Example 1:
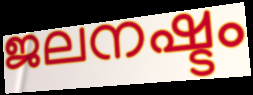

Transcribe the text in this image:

ജലനഷ്ടം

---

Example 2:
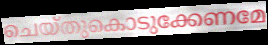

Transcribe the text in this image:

ചെയ്തുകൊടുക്കേണമേ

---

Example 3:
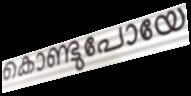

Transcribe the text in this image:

കൊണ്ടുപോയേ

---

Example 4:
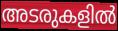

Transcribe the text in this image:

അടരുകളിൽ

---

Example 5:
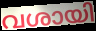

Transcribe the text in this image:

വശായി